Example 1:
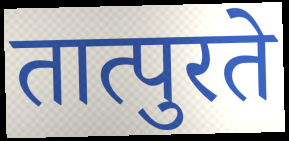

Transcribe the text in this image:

तात्पुरते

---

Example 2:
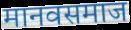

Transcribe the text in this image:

मानवसमाज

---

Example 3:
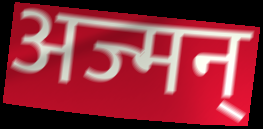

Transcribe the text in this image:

अज्मन्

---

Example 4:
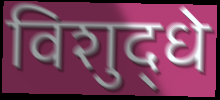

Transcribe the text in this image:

विशुद्धे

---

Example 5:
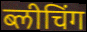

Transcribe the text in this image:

ब्लीचिंग